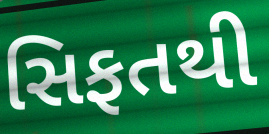
સિફતથી